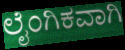
ಲೈಂಗಿಕವಾಗಿ